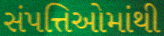
સંપત્તિઓમાંથી